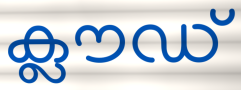
ക്ലൗഡ്